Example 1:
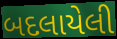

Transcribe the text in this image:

બદલાયેલી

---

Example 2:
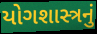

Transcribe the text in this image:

યોગશાસ્ત્રનું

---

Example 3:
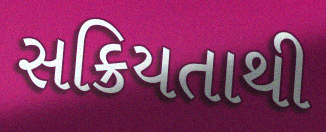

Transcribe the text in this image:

સક્રિયતાથી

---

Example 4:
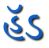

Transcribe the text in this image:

હૅડ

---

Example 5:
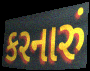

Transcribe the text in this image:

કરનારું